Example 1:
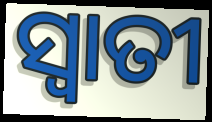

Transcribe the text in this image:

ସ୍ୱାତୀ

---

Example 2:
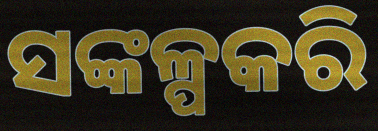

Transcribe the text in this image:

ସଙ୍କଳ୍ପକରି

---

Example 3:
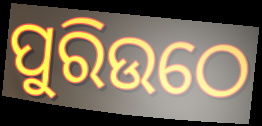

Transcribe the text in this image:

ପୁରିଉଠେ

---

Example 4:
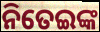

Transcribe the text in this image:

ନିତେଇଙ୍କ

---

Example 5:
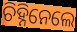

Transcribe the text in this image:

ଚିହ୍ନିନେଲେ